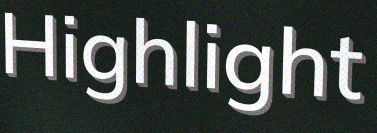
Highlight